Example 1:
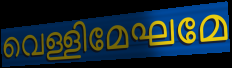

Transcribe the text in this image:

വെള്ളിമേഘമേ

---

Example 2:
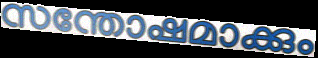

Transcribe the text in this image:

സന്തോഷമാക്കും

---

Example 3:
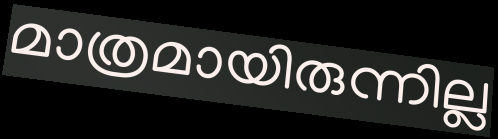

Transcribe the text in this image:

മാത്രമായിരുന്നില്ല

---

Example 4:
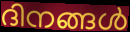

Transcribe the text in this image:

ദിനങ്ങൾ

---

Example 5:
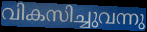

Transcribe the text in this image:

വികസിച്ചുവന്നു